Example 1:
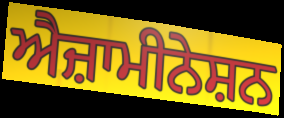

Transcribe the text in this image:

ਐਜ਼ਾਮੀਨੇਸ਼ਨ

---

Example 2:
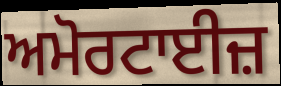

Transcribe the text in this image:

ਅਮੋਰਟਾਈਜ਼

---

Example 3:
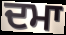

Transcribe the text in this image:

ਦਮਾ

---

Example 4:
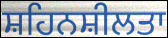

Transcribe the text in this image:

ਸ਼ਹਿਨਸ਼ੀਲਤਾ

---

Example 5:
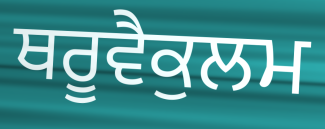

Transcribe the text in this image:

ਥਰੂਵੈਕੁਲਮ